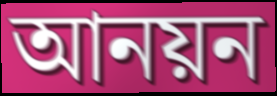
আনয়ন